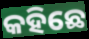
କହିଛେ